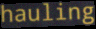
hauling